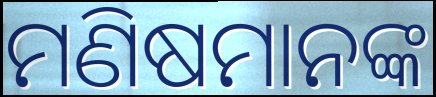
ମଣିଷମାନଙ୍କ